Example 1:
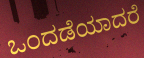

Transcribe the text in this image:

ಒಂದಡೆಯಾದರೆ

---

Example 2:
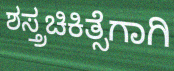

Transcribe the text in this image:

ಶಸ್ತ್ರಚಿಕಿತ್ಸೆಗಾಗಿ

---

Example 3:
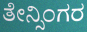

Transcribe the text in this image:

ತೇನ್ಸಿಂಗರ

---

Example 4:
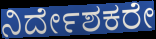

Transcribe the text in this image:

ನಿರ್ದೇಶಕರೇ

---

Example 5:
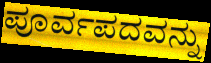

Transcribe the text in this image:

ಪೂರ್ವಪದವನ್ನು